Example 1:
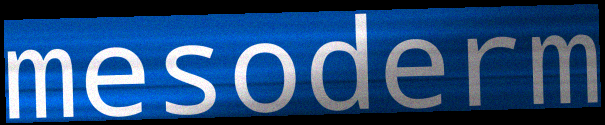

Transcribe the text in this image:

mesoderm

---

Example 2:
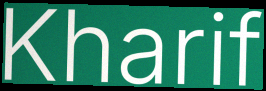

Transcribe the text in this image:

Kharif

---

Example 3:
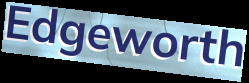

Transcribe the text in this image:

Edgeworth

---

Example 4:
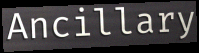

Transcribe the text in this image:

Ancillary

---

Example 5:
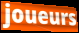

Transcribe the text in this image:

joueurs